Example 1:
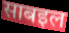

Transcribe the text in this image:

साबइल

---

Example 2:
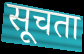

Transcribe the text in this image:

सूचता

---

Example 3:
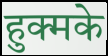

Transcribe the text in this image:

हुक्मके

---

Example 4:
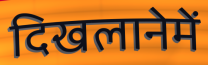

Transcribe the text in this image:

दिखलानेमें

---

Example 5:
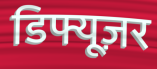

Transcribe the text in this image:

डिफ्यूज़र